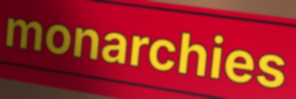
monarchies